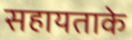
सहायताके